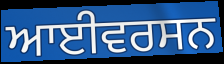
ਆਈਵਰਸਨ